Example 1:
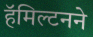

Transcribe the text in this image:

हॅमिल्टनने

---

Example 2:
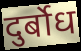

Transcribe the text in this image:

दुर्बोध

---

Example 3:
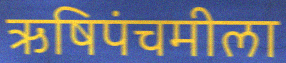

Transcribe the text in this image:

ऋषिपंचमीला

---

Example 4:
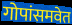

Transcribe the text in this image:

गोपांसमवेत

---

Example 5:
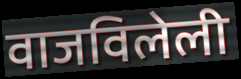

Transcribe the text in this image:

वाजविलेली